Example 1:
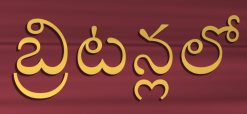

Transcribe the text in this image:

బ్రిటన్లలో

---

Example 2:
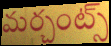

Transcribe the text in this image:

మర్చంట్స్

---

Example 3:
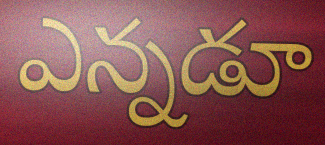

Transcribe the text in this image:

ఎన్నడూ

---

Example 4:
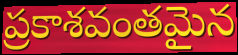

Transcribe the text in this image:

ప్రకాశవంతమైన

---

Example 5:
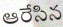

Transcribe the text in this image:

ఆరేసిన